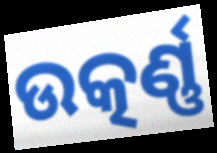
ଉତ୍କର୍ଣ୍ଣ